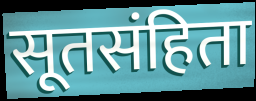
सूतसंहिता